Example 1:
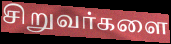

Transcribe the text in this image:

சிறுவர்களை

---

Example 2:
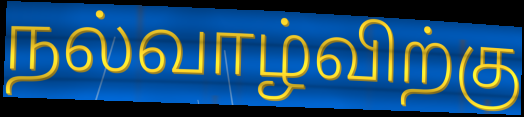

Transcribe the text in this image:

நல்வாழ்விற்கு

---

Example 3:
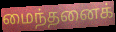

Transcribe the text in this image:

மைந்தனைக்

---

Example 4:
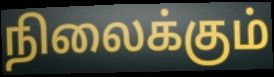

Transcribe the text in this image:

நிலைக்கும்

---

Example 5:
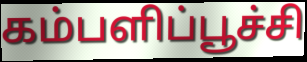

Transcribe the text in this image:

கம்பளிப்பூச்சி